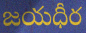
జయధీర